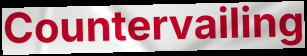
Countervailing